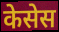
केसेस